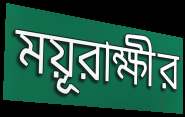
ময়ূরাক্ষীর